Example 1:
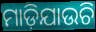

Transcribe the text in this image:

ମାଡ଼ିଯାଉଚି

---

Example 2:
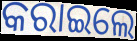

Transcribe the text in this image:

କରାଇଲେ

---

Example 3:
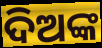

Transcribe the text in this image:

ଦିଅଙ୍କ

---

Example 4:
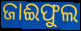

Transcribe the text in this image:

ଜାଈଫୁଲ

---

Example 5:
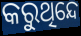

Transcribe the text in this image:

କରୁଥିନ୍ଦେ